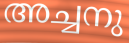
അച്ചനു